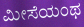
ಮೀಸೆಯಂಥ